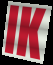
IK